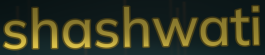
shashwati